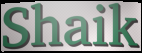
Shaik